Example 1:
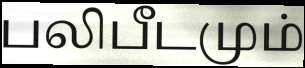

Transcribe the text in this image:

பலிபீடமும்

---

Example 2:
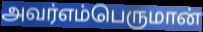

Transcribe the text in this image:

அவர்எம்பெருமான்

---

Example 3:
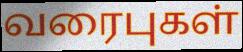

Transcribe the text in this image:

வரைபுகள்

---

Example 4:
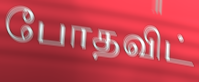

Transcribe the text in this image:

போதவிட்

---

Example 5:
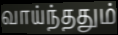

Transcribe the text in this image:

வாய்ந்ததும்